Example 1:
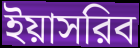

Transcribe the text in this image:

ইয়াসরিব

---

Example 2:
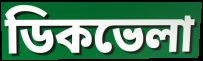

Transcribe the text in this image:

ডিকভেলা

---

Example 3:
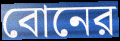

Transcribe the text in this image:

বোনের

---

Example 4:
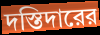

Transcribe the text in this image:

দস্তিদারের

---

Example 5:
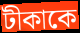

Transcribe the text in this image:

টীকাকে